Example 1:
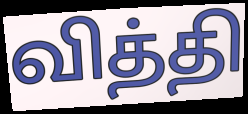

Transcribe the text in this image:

வித்தி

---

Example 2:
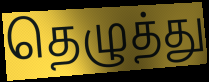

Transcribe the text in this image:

தெழுத்து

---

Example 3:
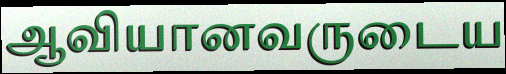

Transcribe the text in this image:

ஆவியானவருடைய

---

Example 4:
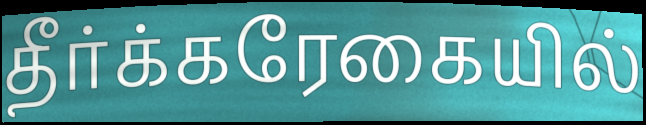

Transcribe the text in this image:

தீர்க்கரேகையில்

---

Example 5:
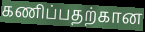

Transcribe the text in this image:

கணிப்பதற்கான